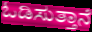
ಓಡಿಸುತ್ತಾನೆ